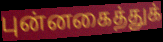
புன்னகைத்துக்